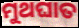
ମୁଥଘାତ